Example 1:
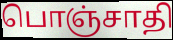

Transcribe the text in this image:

பொஞ்சாதி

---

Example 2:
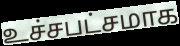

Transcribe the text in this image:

உச்சபட்சமாக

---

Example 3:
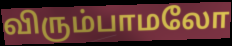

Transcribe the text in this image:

விரும்பாமலோ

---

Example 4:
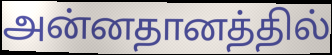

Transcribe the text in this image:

அன்னதானத்தில்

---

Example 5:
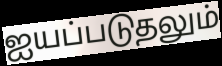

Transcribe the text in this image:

ஐயப்படுதலும்